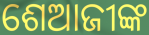
ଶେଆଜୀଙ୍କ